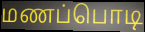
மணப்பொடி